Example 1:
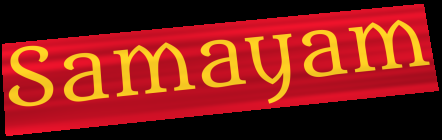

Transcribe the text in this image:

Samayam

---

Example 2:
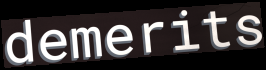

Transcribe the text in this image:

demerits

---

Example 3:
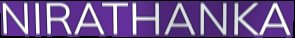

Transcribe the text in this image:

NIRATHANKA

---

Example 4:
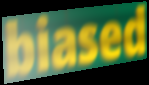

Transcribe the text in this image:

biased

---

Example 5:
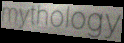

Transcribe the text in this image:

mythology